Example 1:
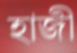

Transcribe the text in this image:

হাজী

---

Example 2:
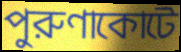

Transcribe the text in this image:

পুরুণাকোটে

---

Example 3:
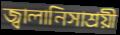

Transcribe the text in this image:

জ্বালানিসাশ্রয়ী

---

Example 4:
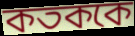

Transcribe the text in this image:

কতককে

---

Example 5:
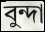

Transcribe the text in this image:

বুন্দা